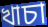
খাচা